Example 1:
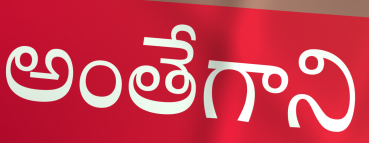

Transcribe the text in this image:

అంతేగాని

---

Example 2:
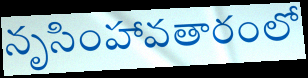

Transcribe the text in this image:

నృసింహావతారంలో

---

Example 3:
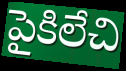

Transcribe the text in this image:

పైకిలేచి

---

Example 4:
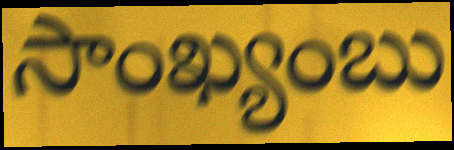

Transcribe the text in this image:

సాంఖ్యంబు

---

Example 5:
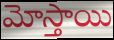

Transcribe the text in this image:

మోస్తాయి